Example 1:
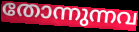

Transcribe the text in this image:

തോന്നുന്നവ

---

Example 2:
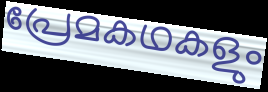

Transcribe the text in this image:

പ്രേമകഥകളും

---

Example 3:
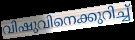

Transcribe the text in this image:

വിഷുവിനെക്കുറിച്ച്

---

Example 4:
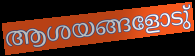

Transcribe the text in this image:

ആശയങ്ങളോടു്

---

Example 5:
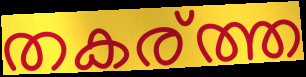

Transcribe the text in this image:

തകര്ത്ത